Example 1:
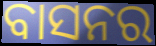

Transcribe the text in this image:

ବାସନର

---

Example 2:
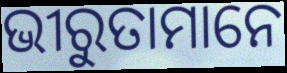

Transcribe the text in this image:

ଭୀରୁତାମାନେ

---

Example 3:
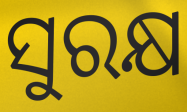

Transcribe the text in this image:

ସୁରକ୍ଷ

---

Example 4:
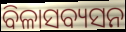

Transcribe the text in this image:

ବିଳାସବ୍ୟସନ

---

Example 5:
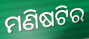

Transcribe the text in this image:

ମଣିଷଟିର